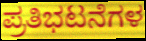
ಪ್ರತಿಭಟನೆಗಳ